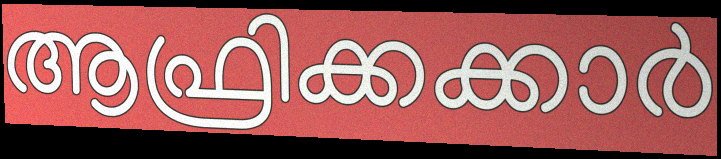
ആഫ്രിക്കക്കാർ